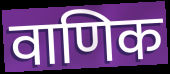
वाणिक